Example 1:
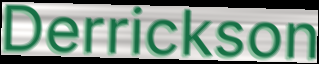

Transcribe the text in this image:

Derrickson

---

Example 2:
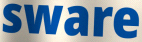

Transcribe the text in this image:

sware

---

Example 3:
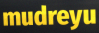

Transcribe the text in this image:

mudreyu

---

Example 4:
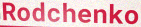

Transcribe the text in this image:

Rodchenko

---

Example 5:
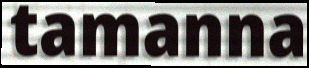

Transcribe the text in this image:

tamanna